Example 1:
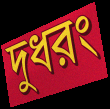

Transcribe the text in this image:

দুধরং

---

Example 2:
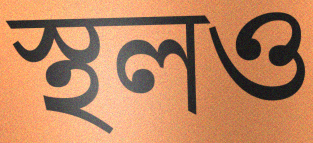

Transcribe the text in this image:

স্থলও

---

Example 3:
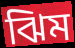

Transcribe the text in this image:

ঝিম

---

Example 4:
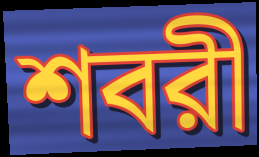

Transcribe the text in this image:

শবরী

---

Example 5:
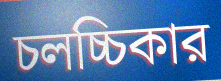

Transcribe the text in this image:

চলচ্চিকার